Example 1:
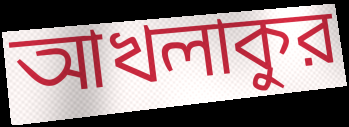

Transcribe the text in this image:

আখলাকুর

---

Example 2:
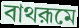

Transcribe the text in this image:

বাথরূমে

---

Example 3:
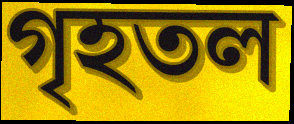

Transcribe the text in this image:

গৃহতল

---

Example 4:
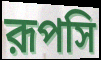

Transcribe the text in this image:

রূপসি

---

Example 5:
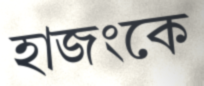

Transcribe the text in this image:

হাজংকে